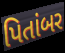
પિતાંબર